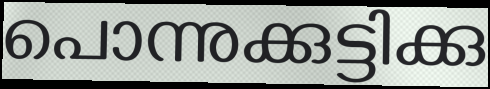
പൊന്നുക്കുട്ടിക്കു